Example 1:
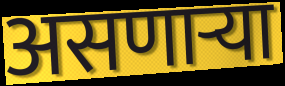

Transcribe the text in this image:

असणार्‍या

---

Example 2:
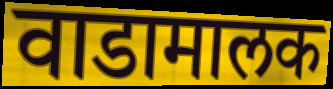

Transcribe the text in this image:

वाडामालक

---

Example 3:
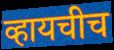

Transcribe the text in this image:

व्हायचीच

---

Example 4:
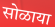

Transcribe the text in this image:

सोळाया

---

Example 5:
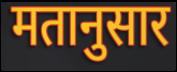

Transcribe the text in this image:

मतानुसार